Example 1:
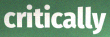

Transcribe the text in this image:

critically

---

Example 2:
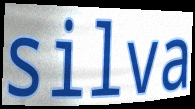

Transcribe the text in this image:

silva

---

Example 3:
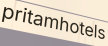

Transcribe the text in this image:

pritamhotels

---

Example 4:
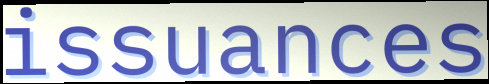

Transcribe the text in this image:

issuances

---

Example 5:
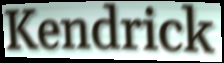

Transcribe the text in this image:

Kendrick